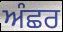
ਅੰਛਰ